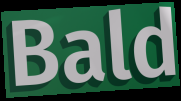
Bald